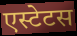
एस्टेटस